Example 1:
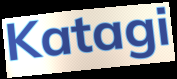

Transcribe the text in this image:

Katagi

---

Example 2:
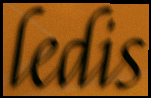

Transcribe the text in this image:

ledis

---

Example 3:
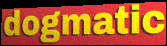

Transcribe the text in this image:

dogmatic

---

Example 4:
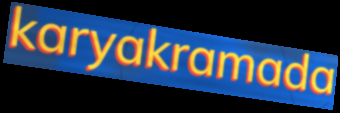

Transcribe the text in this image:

karyakramada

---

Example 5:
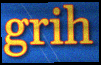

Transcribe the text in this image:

grih